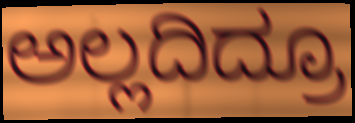
ಅಲ್ಲದಿದ್ರೂ